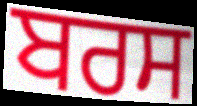
ਬਰਸ